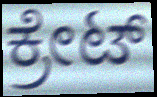
ಕ್ರೇಟ್